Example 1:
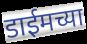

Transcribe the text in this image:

डाईमच्या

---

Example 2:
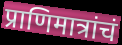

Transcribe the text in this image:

प्राणिमात्रांचं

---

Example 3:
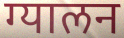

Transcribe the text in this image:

ग्यालन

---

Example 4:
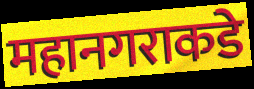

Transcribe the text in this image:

महानगराकडे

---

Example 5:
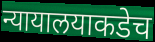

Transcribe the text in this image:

न्यायालयाकडेच